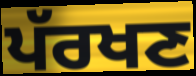
ਪੱਰਖਣ